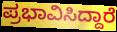
ಪ್ರಭಾವಿಸಿದ್ದಾರೆ